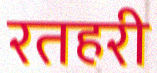
रतहरी